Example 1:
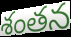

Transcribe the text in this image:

శంతన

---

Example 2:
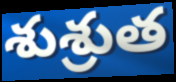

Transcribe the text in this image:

శుశ్రుత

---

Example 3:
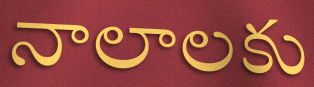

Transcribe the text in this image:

నాలాలకు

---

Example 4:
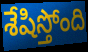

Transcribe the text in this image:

శేషిస్తోంది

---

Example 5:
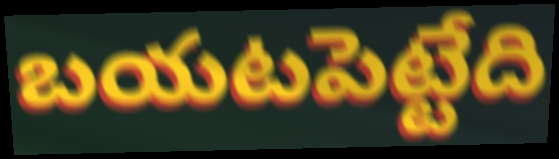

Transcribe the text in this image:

బయటపెట్టేది